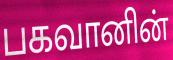
பகவானின்